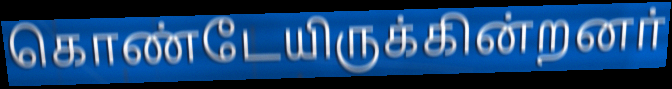
கொண்டேயிருக்கின்றனர்